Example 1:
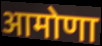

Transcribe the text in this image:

आमोणा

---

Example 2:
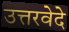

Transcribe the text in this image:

उत्तरवेदे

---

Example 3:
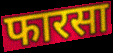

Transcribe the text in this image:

फारसा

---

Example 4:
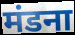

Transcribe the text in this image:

मंडना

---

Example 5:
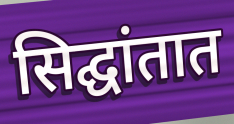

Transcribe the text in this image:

सिद्घांतात